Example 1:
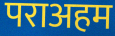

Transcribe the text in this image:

पराअहम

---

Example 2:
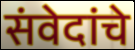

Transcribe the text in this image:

संवेदांचे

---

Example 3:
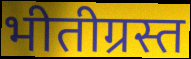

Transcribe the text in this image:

भीतीग्रस्त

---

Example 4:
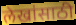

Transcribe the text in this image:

लेखांसाठी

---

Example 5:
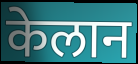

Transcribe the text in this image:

केलान